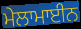
ਮੇਲਾਮਾਈਨ